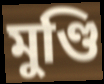
মুণ্ডি